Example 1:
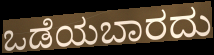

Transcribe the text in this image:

ಒಡೆಯಬಾರದು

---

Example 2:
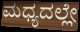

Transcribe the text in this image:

ಮಧ್ಯದಲ್ಲೇ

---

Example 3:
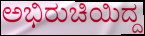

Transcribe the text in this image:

ಅಭಿರುಚಿಯಿದ್ದ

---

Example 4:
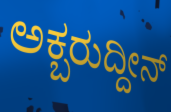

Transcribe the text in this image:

ಅಕ್ಬರುದ್ದೀನ್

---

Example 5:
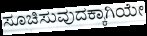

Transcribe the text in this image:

ಸೂಚಿಸುವುದಕ್ಕಾಗಿಯೇ